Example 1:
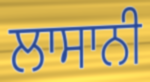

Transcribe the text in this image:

ਲਾਸਾਨੀ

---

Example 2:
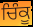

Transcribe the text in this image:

ਚਿੰਕੂ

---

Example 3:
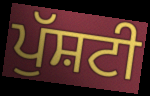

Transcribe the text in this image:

ਪੁੱਸ਼ਟੀ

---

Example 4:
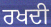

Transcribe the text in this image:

ਰਖਦੀ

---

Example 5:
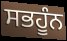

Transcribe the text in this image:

ਸਭਹੂੰਨ